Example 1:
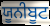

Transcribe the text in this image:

ਯੂਨੀਬੂਟ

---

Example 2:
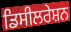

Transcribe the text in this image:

ਡਿਸੀਲਰੇਸ਼ਨ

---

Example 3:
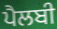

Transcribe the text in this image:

ਪੈਲਬੀ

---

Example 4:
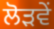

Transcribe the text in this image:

ਲੋੜਵੇਂ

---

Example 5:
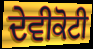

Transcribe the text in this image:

ਦੇਵੀਕੋਟੀ